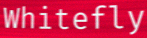
Whitefly